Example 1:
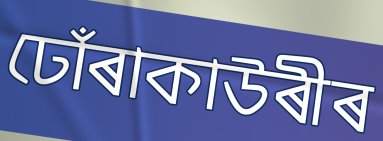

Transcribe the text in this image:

ঢোঁৰাকাউৰীৰ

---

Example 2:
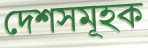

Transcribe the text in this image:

দেশসমূহক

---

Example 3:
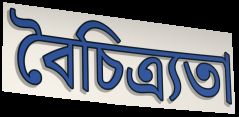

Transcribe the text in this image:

বৈচিত্ৰ্যতা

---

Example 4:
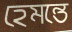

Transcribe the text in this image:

হেমন্তে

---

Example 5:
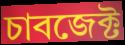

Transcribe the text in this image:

চাবজেক্ট